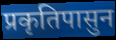
प्रकृतिपासुन